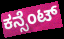
ಕನ್ಸೆಂಟ್